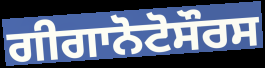
ਗੀਗਾਨੋਟੋਸੌਰਸ